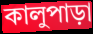
কালুপাড়া